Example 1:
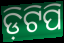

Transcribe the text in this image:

ଡ଼ିଟିପି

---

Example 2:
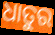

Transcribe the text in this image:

ଧାତୁର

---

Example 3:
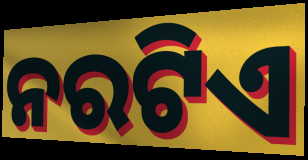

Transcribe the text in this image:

ନରଟିଏ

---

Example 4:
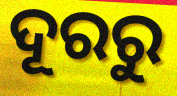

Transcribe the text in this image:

ଦୂରରୁ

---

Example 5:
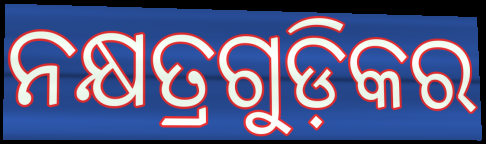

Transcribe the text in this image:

ନକ୍ଷତ୍ରଗୁଡ଼ିକର